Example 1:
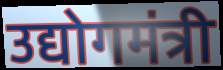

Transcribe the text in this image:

उद्योगमंत्री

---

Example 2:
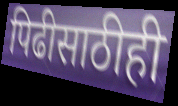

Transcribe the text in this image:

पिढीसाठीही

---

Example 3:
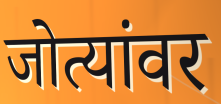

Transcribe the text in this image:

जोत्यांवर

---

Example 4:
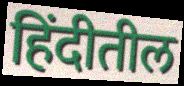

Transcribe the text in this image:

हिंदीतील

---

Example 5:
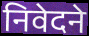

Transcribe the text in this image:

निवेदने